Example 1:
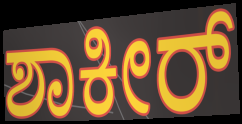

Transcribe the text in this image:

ಶಾಕೀರ್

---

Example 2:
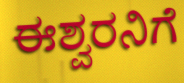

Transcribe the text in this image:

ಈಶ್ವರನಿಗೆ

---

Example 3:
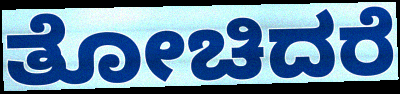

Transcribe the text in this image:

ತೋಚಿದರೆ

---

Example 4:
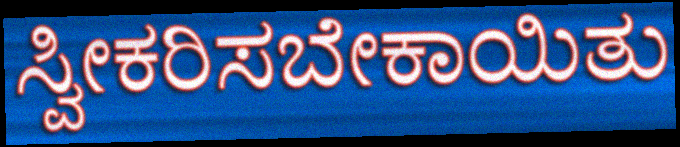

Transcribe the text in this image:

ಸ್ವೀಕರಿಸಬೇಕಾಯಿತು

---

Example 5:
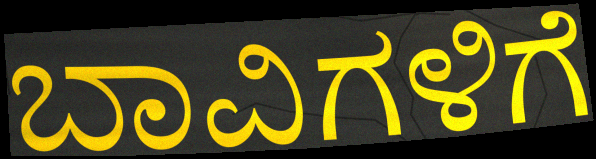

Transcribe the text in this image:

ಬಾವಿಗಳಿಗೆ